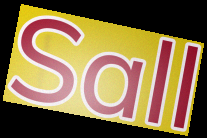
Sall